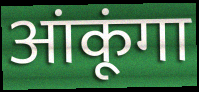
आंकूंगा